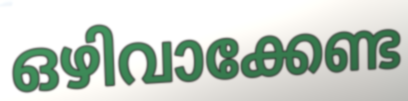
ഒഴിവാക്കേണ്ട